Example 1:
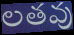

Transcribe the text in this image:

లతవు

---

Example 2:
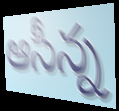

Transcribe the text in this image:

ఆసీన్న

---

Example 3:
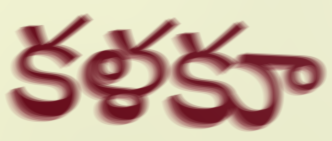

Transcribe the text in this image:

కళకూ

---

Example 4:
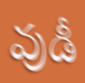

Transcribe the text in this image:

వుడీ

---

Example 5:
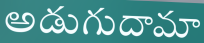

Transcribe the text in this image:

అడుగుదామా